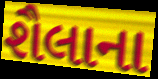
શૈલાના